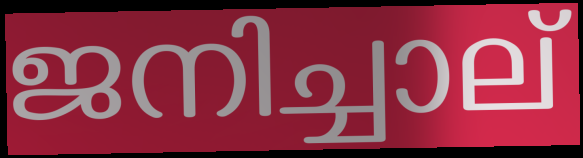
ജനിച്ചാല്